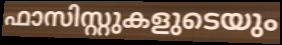
ഫാസിസ്റ്റുകളുടെയും